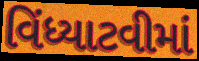
વિંધ્યાટવીમાં